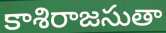
కాశిరాజసుతా